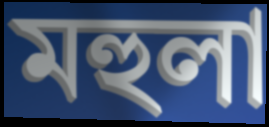
মহুলা